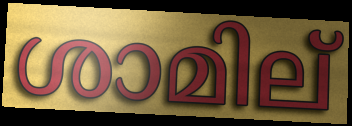
ശാമില്